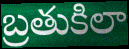
బ్రతుకిలా